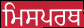
ਮਿਸਪਰਥ